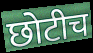
छोटीच